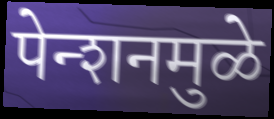
पेन्शनमुळे